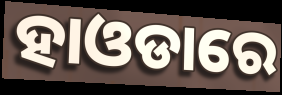
ହାଓଡାରେ